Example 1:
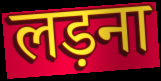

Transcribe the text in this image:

लड़ना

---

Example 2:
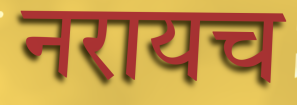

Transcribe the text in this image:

नरायच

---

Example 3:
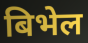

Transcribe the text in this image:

बिभेल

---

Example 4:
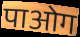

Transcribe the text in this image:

पाओग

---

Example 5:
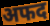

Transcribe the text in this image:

अफद